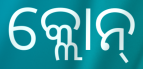
କ୍ଲୋନ୍